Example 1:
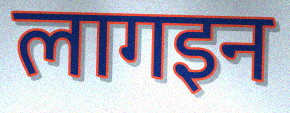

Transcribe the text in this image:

लागइन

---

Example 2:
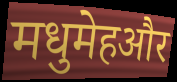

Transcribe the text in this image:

मधुमेहऔर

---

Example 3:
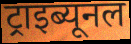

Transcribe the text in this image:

ट्राइब्यूनल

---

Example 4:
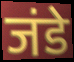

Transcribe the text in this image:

जंडे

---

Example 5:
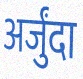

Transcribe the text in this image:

अर्जुंदा